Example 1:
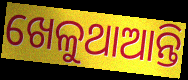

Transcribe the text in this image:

ଖେଳୁଥାଆନ୍ତି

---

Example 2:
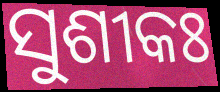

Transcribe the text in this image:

ସୁଶୀକଃ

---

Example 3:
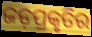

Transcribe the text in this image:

ଜଡ଼ପ୍ରକୃତିର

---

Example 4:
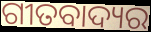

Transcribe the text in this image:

ଗୀତବାଦ୍ୟର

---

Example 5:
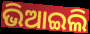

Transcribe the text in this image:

ଭିଆଇଲି